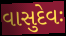
વાસુદેવઃ